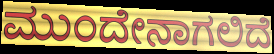
ಮುಂದೇನಾಗಲಿದೆ